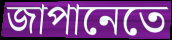
জাপানেতে